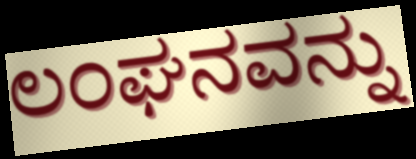
ಲಂಘನವನ್ನು